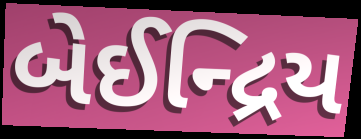
બેઈન્દ્રિય